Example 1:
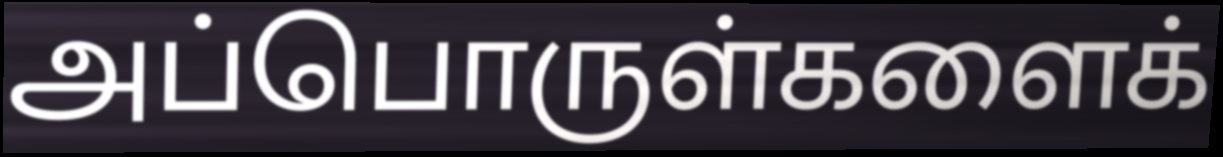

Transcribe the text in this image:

அப்பொருள்களைக்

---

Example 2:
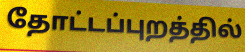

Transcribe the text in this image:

தோட்டப்புறத்தில்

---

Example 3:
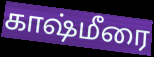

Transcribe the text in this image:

காஷ்மீரை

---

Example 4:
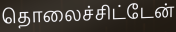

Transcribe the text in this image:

தொலைச்சிட்டேன்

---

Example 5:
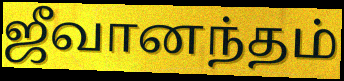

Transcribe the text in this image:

ஜீவானந்தம்